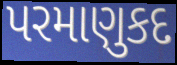
પરમાણુકદ